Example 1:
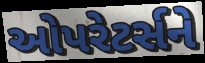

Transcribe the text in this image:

ઓપરેટર્સને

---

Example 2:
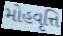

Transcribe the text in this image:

મોહવૃત્તિ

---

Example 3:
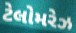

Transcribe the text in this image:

ટેલોમરેઝ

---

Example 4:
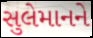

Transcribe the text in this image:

સુલેમાનને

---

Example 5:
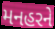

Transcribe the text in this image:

મનહરને